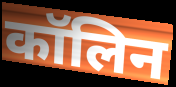
कॉलिन